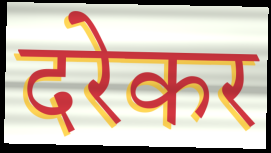
दरेकर